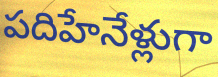
పదిహేనేళ్లుగా